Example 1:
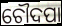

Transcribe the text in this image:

ଚୌଦପା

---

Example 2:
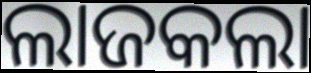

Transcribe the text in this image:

ଲାଜକଲା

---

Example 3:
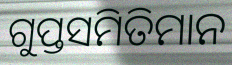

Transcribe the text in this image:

ଗୁପ୍ତସମିତିମାନ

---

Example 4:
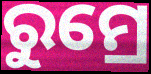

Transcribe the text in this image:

ରୁମ୍ରେ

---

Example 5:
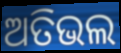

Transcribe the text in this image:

ଅତିଭଲ